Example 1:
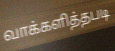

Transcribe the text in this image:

வாக்களித்தபடி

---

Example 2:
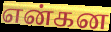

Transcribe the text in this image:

என்கன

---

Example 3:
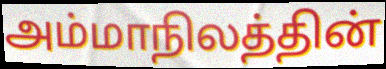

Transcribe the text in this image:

அம்மாநிலத்தின்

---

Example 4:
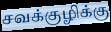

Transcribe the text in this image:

சவக்குழிக்கு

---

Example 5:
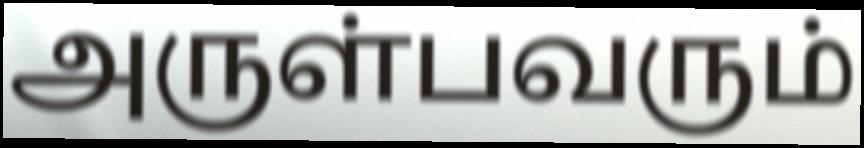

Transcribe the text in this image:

அருள்பவரும்